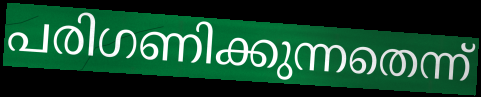
പരിഗണിക്കുന്നതെന്ന്